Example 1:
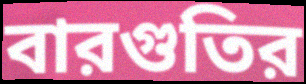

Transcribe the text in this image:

বারগুতির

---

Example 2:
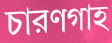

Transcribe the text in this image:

চারণগাহ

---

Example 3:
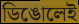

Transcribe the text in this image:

ডিঙোলেই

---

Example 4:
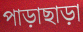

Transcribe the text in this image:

পাড়াছাড়া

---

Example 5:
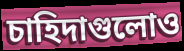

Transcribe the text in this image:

চাহিদাগুলোও